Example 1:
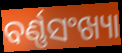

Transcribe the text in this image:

ବର୍ଣ୍ଣସଂଖ୍ୟା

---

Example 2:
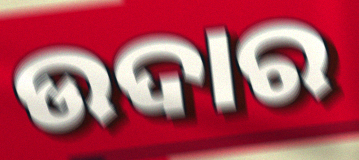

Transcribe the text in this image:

ଉଦାର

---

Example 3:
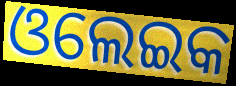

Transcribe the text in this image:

ଓଲେଇକ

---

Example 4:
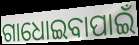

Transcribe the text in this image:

ଗାଧୋଇବାପାଇଁ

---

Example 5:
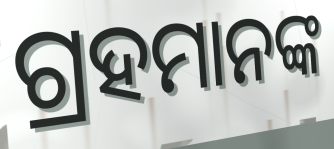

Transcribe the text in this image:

ଗ୍ରହମାନଙ୍କ